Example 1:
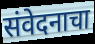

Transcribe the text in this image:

संवेदनाचा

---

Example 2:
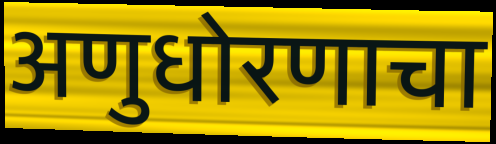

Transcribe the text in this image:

अणुधोरणाचा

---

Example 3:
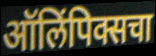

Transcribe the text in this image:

ऑलिंपिक्सचा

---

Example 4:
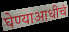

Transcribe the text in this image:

घेण्याआधीचं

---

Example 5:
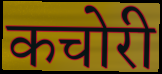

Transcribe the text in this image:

कचोरी